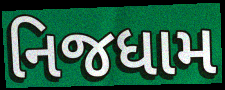
નિજધામ